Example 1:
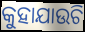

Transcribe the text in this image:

କୁହାଯାଉଚି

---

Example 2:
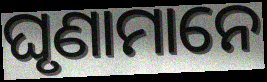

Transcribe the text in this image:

ଘୃଣାମାନେ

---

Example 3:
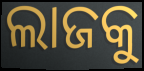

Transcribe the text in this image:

ଲାଜକୁ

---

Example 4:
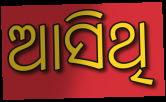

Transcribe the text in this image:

ଆସିଥି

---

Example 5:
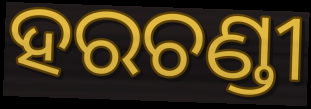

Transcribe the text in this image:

ହରଚଣ୍ଡୀ